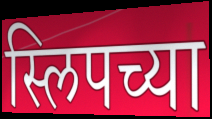
स्लिपच्या